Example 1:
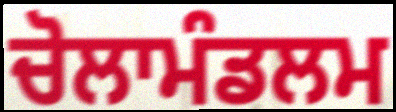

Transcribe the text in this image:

ਚੋਲਾਮੰਡਲਮ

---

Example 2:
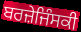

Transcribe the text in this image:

ਬਰਜ਼ੇਜਿੰਸਕੀ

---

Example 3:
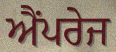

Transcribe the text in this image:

ਐਂਪਰੇਜ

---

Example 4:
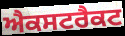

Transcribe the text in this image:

ਐਕਸਟਰੈਕਟ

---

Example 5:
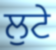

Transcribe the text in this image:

ਲੁਟੇ